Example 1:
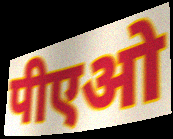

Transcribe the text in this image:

पीएओ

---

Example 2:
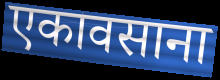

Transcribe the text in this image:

एकावसाना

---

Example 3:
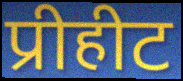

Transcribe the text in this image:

प्रीहीट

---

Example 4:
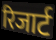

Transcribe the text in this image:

रिजार्ट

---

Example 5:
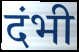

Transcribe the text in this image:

दंभी